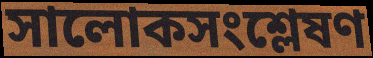
সালোকসংশ্লেষণ